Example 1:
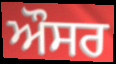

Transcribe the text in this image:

ਔਸਰ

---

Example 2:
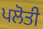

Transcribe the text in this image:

ਪਲੋਤੀ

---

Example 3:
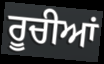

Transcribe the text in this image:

ਰੂਚੀਆਂ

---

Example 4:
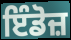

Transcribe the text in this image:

ਇੰਡੋਜ਼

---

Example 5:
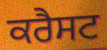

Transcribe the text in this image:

ਕਰੈਸਟ